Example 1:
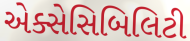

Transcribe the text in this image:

એક્સેસિબિલિટી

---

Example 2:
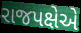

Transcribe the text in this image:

રાજપક્ષેએ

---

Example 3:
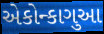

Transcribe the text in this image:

એકોન્કાગુઆ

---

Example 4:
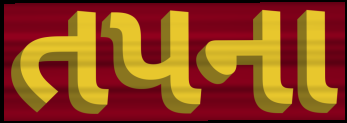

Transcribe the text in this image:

તપના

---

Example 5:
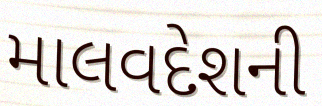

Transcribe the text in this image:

માલવદેશની